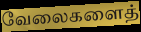
வேலைகளைத்